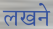
लखने